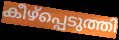
കീഴ്പ്പെടുത്തി